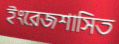
ইংরেজশাসিত